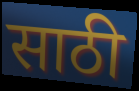
साठी